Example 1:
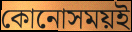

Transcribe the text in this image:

কোনোসময়ই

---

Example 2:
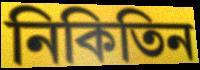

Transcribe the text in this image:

নিকিতিন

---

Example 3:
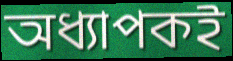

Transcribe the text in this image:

অধ্যাপকই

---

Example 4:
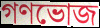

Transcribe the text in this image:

গণভোজ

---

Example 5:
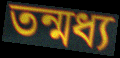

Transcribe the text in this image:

তন্মধ্য